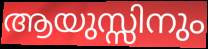
ആയുസ്സിനും